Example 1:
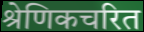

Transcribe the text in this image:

श्रेणिकचरित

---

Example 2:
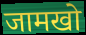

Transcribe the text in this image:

जामखो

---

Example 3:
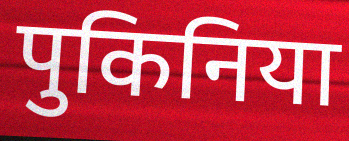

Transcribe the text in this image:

पुकिनिया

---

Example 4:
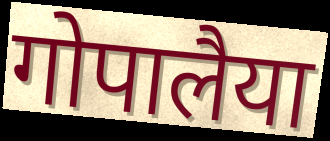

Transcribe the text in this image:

गोपालैया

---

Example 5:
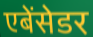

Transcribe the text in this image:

एबेंसेडर